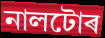
নালটোৰ